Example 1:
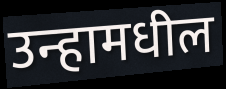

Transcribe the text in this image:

उन्हामधील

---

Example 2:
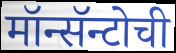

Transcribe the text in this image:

मॉन्सॅन्टोची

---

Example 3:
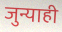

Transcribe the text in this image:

जुन्याही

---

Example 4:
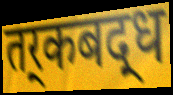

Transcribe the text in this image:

तर्कबद्ध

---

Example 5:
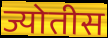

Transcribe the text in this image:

ज्योतीस